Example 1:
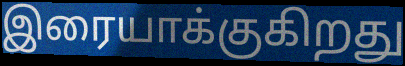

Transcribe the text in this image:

இரையாக்குகிறது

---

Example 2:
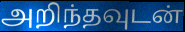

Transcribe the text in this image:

அறிந்தவுடன்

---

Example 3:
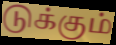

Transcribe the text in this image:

டுக்கும்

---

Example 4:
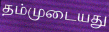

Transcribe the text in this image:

தம்முடையது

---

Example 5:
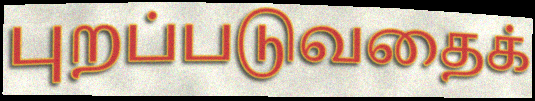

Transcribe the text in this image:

புறப்படுவதைக்